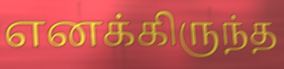
எனக்கிருந்த